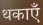
थकाएँ